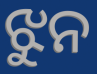
ଝୁନ